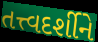
તત્ત્વદર્શીને